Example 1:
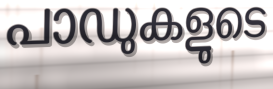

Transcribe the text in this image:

പാഡുകളുടെ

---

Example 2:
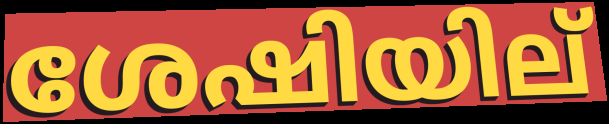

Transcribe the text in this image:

ശേഷിയില്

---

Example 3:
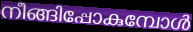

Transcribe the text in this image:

നീങ്ങിപ്പോകുമ്പോൾ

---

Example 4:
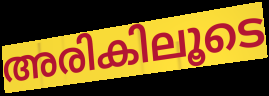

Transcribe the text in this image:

അരികിലൂടെ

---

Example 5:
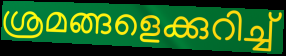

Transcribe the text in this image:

ശ്രമങ്ങളെക്കുറിച്ച്